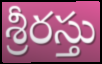
శ్రీరస్తు